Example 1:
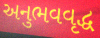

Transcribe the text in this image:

અનુભવવૃદ્ધ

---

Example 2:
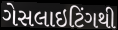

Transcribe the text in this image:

ગેસલાઇટિંગથી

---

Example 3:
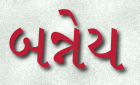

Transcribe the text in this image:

બન્નેય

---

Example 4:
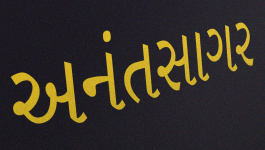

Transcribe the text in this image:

અનંતસાગર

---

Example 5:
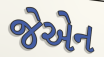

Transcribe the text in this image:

જેએન